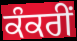
ਕੰਕਰੀਂ